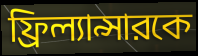
ফ্রিল্যান্সারকে